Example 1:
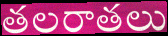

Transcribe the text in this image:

తలరాతలు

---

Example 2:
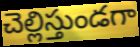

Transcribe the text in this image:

చెల్లిస్తుండగా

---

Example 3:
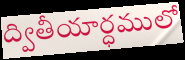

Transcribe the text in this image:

ద్వితీయార్ధములో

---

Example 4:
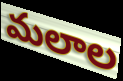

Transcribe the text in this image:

మలాల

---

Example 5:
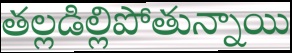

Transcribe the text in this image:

తల్లడిల్లిపోతున్నాయి